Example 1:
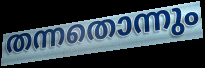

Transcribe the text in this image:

തന്നതൊന്നും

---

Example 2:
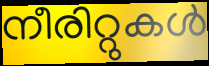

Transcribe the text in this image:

നീരിറ്റുകൾ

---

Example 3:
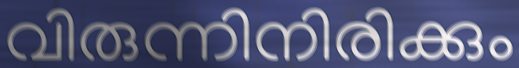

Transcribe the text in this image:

വിരുന്നിനിരിക്കും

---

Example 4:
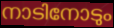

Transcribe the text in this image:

നാടിനോടും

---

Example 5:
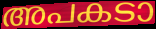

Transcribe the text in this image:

അപകടാ